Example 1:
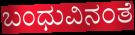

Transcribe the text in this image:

ಬಂಧುವಿನಂತೆ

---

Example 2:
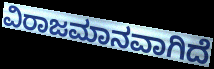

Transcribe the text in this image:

ವಿರಾಜಮಾನವಾಗಿದೆ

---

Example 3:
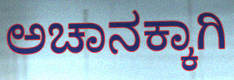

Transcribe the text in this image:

ಅಚಾನಕ್ಕಾಗಿ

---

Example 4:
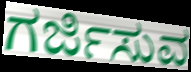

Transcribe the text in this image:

ಗರ್ಜಿಸುವ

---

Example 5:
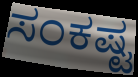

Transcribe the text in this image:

ಸಂಕಷ್ಟ